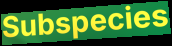
Subspecies